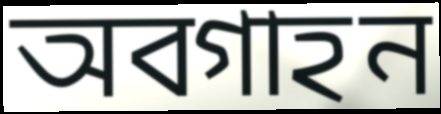
অবগাহন